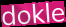
dokle